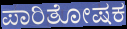
ಪಾರಿತೋಷಕ